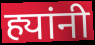
ह्यांनी